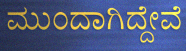
ಮುಂದಾಗಿದ್ದೇವೆ